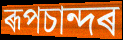
ৰূপচান্দৰ